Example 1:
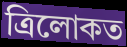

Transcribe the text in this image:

ত্ৰিলোকত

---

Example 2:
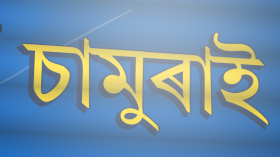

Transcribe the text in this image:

চামুৰাই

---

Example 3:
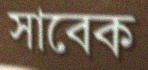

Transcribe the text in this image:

সাবেক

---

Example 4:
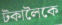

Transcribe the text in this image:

টকালৈকে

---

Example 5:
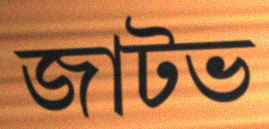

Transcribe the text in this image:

জাটভ